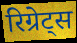
रिग्रेट्स